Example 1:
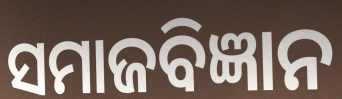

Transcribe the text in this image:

ସମାଜବିଜ୍ଞାନ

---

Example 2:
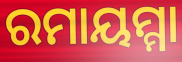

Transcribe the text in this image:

ରମାୟମ୍ମା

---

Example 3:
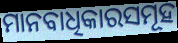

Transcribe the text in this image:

ମାନବାଧିକାରସମୂହ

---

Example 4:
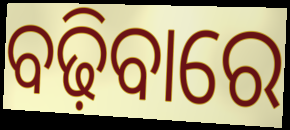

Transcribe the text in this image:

ବଢ଼ିବାରେ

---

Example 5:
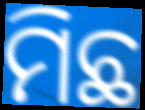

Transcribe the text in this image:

ମିଛ